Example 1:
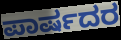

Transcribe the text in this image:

ಪಾರ್ಷದರ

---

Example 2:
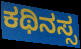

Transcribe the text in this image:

ಕಥಿನಸ್ಸ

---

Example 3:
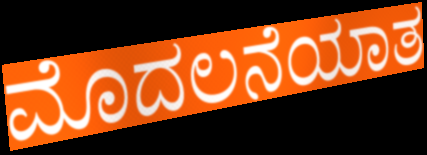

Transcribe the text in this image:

ಮೊದಲನೆಯಾತ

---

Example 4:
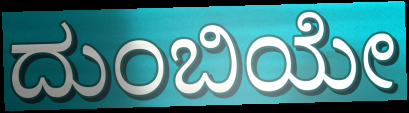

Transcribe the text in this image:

ದುಂಬಿಯೇ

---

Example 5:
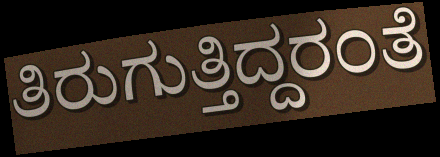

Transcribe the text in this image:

ತಿರುಗುತ್ತಿದ್ದರಂತೆ